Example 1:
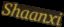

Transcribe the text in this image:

Shaanxi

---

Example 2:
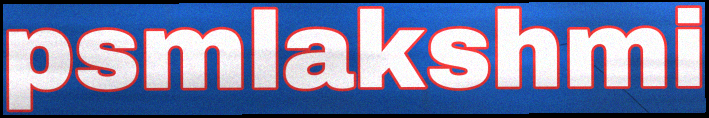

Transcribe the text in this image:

psmlakshmi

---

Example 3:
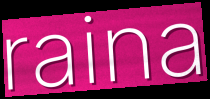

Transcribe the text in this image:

raina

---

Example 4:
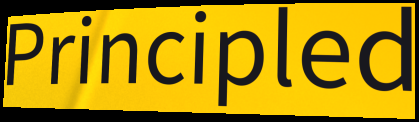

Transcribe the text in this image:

Principled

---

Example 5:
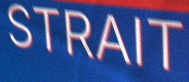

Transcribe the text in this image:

STRAIT